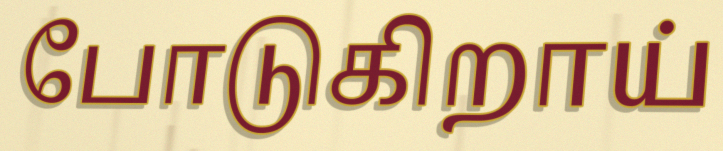
போடுகிறாய்